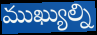
ముఖ్యుల్ని